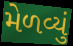
મેળવ્યું